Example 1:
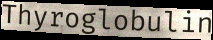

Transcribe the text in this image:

Thyroglobulin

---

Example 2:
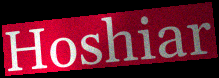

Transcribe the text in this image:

Hoshiar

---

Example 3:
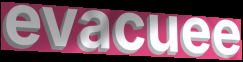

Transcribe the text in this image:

evacuee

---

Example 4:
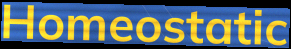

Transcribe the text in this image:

Homeostatic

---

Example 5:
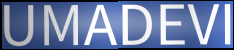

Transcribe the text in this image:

UMADEVI